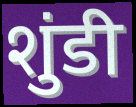
शुंडी